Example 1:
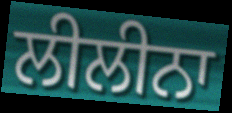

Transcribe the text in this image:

ਲੀਲੀਨਾ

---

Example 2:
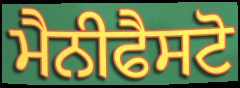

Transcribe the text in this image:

ਮੈਨੀਫੈਸਟੋ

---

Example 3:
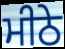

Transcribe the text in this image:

ਮੀਠੇ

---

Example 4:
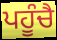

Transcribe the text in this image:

ਪਹੂੰਚੈ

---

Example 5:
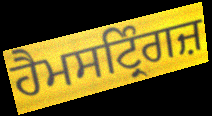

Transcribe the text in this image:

ਹੈਮਸਟ੍ਰਿੰਗਜ਼